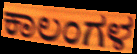
ಕಾಲಂಗಳ